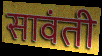
सावंती